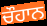
ਚੌਹਾਨ